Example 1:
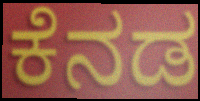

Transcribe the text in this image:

ಕೆನಡ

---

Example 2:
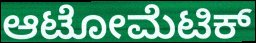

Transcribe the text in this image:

ಆಟೋಮೆಟಿಕ್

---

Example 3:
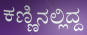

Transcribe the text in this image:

ಕಣ್ಣಿನಲ್ಲಿದ್ದ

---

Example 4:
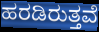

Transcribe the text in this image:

ಹರಡಿರುತ್ತವೆ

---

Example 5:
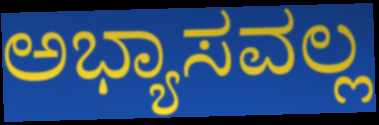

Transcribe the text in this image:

ಅಭ್ಯಾಸವಲ್ಲ